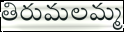
తిరుమలమ్మ